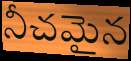
నీచమైన